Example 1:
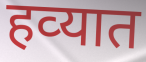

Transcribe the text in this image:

हव्‍यात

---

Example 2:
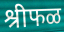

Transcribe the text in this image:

श्रीफळ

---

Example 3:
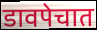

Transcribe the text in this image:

डावपेचात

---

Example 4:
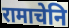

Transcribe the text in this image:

रामाचेनि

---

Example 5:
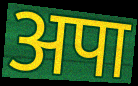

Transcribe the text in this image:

अपा